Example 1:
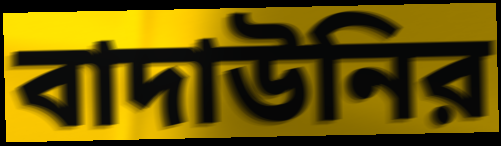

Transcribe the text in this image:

বাদাউনির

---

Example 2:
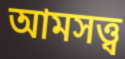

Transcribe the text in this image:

আমসত্ত্ব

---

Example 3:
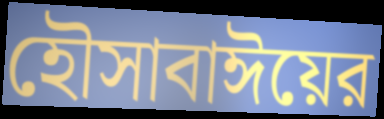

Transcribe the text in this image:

হৌসাবাঈয়ের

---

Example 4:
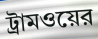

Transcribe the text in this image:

ট্রামওয়ের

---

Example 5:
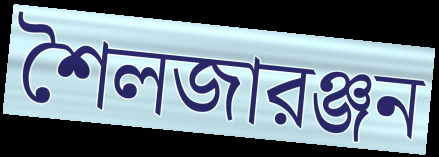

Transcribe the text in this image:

শৈলজারঞ্জন